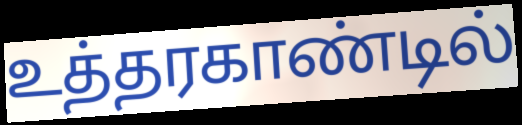
உத்தரகாண்டில்